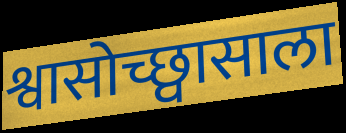
श्वासोच्छ्वासाला